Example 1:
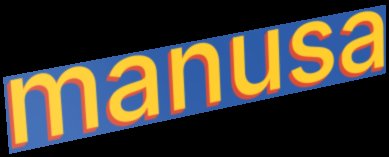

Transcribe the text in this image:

manusa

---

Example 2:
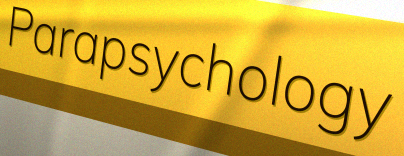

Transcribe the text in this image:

Parapsychology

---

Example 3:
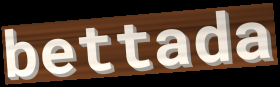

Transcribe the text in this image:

bettada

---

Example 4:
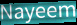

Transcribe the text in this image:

Nayeem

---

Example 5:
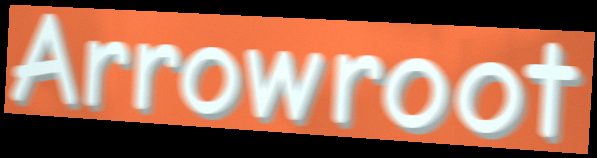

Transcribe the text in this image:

Arrowroot